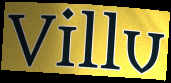
Villu